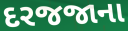
દરજજાના